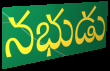
నభుడు